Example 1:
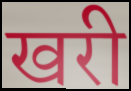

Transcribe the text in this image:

खरी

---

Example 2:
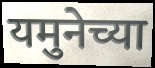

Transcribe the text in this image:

यमुनेच्या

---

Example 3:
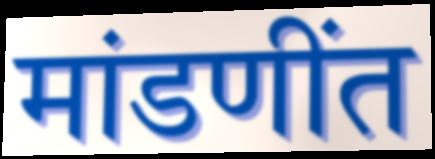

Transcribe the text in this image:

मांडणींत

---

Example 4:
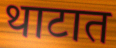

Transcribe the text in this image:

थाटात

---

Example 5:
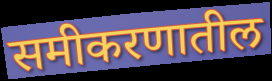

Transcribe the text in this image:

समीकरणातील